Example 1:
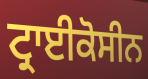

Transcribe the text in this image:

ਟ੍ਰਾਈਕੋਸੀਨ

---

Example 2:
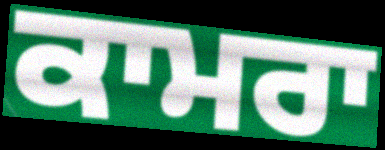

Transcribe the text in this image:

ਕਾਮਰਾ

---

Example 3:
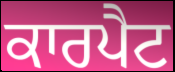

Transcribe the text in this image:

ਕਾਰਪੈਟ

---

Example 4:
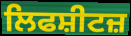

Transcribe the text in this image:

ਲਿਫਸ਼ੀਟਜ਼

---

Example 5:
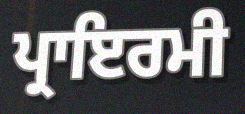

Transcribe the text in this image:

ਪ੍ਰਾਇਰਮੀ